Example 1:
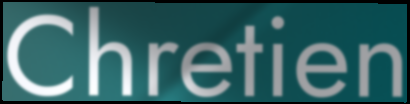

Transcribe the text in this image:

Chretien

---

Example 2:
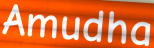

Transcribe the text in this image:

Amudha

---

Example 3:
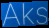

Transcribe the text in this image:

Aks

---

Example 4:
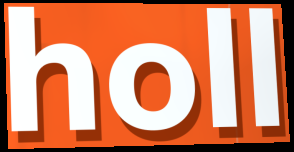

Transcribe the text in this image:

holl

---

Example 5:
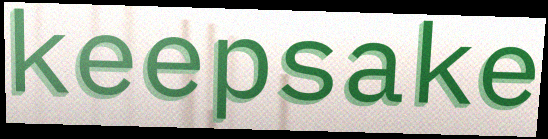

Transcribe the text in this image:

keepsake